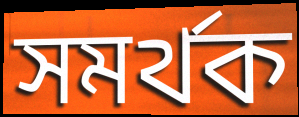
সমর্থক